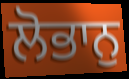
ਲੋਭਾਨੁ